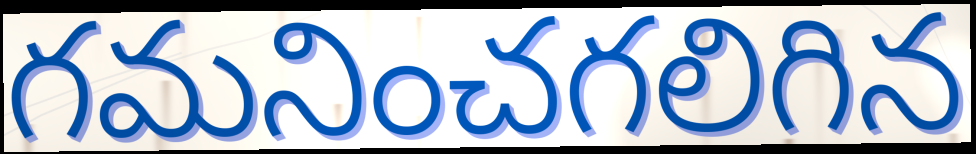
గమనించగలిగిన